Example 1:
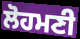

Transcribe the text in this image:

ਲੋਹਮਣੀ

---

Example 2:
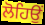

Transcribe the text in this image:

ਲੋਹਿਉਂ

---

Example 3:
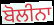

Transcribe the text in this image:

ਬੋਲੀਨਾ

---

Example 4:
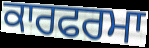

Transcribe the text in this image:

ਕਾਰਫਰਮਾ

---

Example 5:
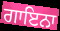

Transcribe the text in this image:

ਗਾਇਨਾ